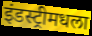
इंडस्ट्रीमधला